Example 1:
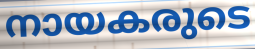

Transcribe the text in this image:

നായകരുടെ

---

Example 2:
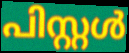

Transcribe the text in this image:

പിസ്റ്റൾ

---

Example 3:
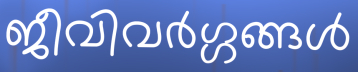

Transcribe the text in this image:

ജീവിവർഗ്ഗങ്ങൾ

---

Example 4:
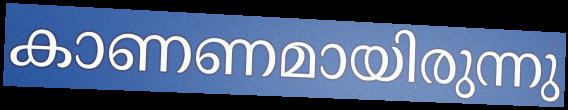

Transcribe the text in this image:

കാണണമായിരുന്നു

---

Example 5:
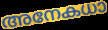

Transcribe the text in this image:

അനേകധാ